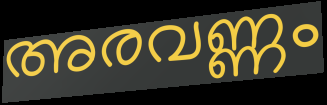
അരവണ്ണം